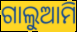
ଗାଲୁଆମି